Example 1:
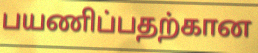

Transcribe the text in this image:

பயணிப்பதற்கான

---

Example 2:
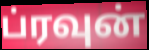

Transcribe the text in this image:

ப்ரவுன்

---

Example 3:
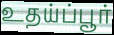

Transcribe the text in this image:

உதய்ப்பூர்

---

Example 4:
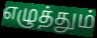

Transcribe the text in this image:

எழுத்தும்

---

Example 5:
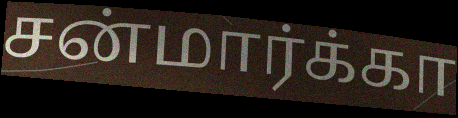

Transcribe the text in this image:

சன்மார்க்கா